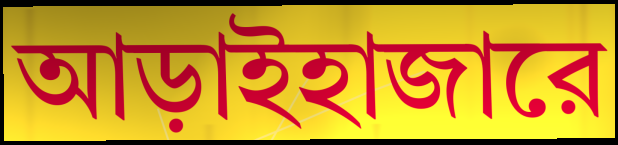
আড়াইহাজারে